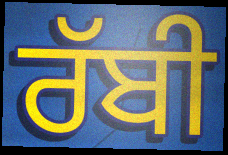
ਰੱਬੀ